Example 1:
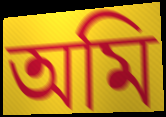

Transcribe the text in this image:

অমি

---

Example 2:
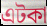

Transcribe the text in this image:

এটকা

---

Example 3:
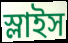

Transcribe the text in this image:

স্লাইস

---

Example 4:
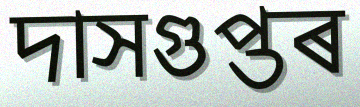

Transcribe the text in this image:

দাসগুপ্তৰ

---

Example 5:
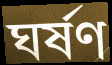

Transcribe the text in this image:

ঘৰ্ষণ